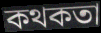
কথকতা